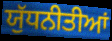
ਯੁੱਧਨੀਤੀਆਂ